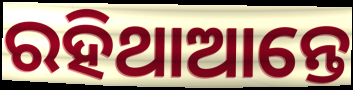
ରହିଥାଆନ୍ତେ